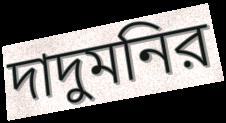
দাদুমনির